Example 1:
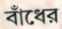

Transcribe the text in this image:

বাঁধের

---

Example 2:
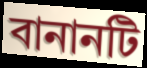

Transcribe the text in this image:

বানানটি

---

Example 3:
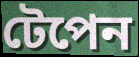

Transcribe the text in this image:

টেপেন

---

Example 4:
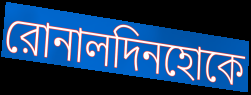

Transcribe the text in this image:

রোনালদিনহোকে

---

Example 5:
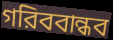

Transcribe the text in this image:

গরিববান্ধব